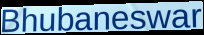
Bhubaneswar